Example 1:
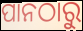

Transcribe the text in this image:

ପାନଠାରୁ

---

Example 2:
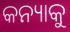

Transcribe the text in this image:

କନ୍ୟାକୁ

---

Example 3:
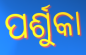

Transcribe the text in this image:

ପର୍ଶୁକା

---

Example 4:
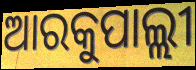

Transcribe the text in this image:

ଆରକୁପାଲ୍ଲୀ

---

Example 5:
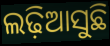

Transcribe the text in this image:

ଲଢ଼ିଆସୁଛି